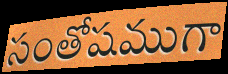
సంతోషముగా